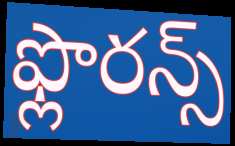
ఫ్లొరన్స్